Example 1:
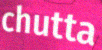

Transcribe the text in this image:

chutta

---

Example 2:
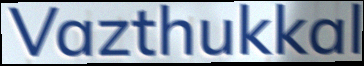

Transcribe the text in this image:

Vazthukkal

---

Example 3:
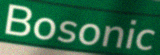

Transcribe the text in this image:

Bosonic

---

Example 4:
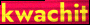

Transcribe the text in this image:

kwachit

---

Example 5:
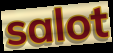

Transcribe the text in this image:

salot